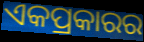
ଏକପ୍ରକାରର